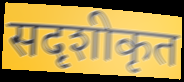
सदृशीकृत